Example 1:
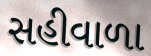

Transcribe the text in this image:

સહીવાળા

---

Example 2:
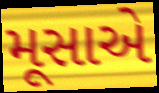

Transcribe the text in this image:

મૂસાએ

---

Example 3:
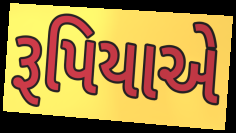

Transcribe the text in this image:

રૂપિયાએ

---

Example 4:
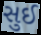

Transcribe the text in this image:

સુઈ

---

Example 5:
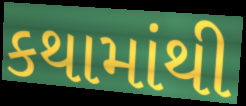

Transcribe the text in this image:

કથામાંથી